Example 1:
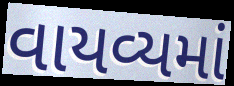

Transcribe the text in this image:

વાયવ્યમાં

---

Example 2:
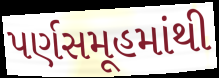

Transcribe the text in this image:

પર્ણસમૂહમાંથી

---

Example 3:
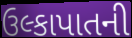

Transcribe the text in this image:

ઉલ્કાપાતની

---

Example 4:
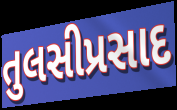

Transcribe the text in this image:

તુલસીપ્રસાદ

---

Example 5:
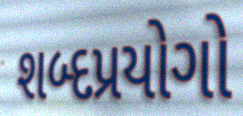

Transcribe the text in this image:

શબ્દપ્રયોગો